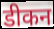
डीकन